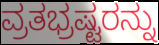
ವ್ರತಭ್ರಷ್ಟರನ್ನು